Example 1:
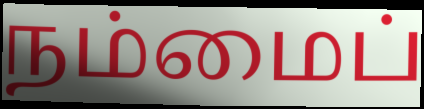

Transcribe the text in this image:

நம்மைப்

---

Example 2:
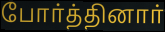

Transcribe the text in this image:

போர்த்தினார்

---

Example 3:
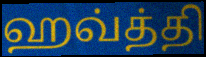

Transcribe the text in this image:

ஹவ்த்தி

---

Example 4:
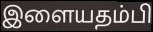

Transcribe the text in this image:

இளையதம்பி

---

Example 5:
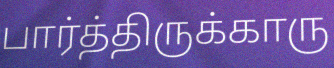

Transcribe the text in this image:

பார்த்திருக்காரு